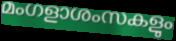
മംഗളാശംസകളും